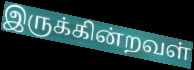
இருக்கின்றவள்